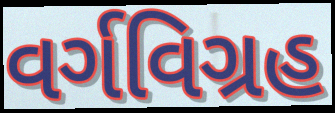
વર્ગવિગ્રહ